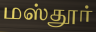
மஸ்தூர்